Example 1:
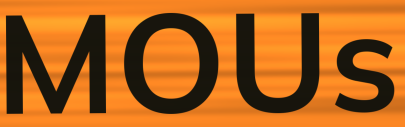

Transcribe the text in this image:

MOUs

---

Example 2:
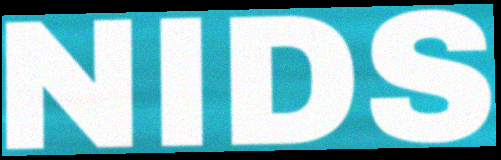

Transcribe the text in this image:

NIDS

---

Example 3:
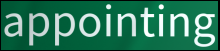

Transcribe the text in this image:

appointing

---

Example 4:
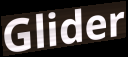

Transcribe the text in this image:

Glider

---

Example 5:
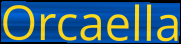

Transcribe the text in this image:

Orcaella